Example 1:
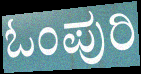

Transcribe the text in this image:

ಓಂಪುರಿ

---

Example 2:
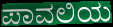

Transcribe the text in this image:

ಪಾವಲಿಯ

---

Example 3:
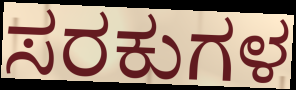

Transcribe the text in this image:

ಸರಕುಗಳ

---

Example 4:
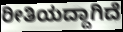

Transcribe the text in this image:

ರೀತಿಯದ್ದಾಗಿದೆ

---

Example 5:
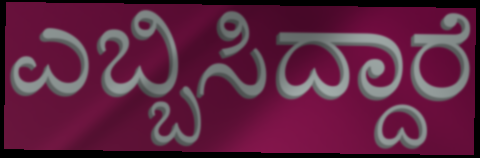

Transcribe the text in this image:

ಎಬ್ಬಿಸಿದ್ದಾರೆ